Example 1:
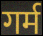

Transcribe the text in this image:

गर्म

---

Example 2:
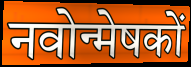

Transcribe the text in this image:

नवोन्मेषकों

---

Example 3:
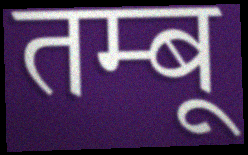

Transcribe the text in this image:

तम्बू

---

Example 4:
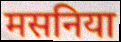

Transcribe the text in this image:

मसनिया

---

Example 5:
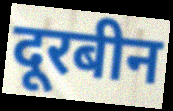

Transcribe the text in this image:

दूरबीन